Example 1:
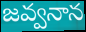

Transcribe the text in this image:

జవ్వనాన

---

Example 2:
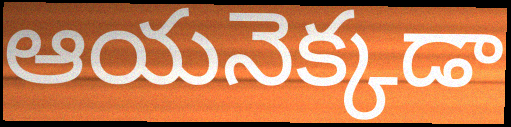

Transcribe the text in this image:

ఆయనెక్కడా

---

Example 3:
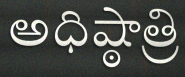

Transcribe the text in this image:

అధిష్ఠాత్రి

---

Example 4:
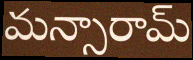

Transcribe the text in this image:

మన్సారామ్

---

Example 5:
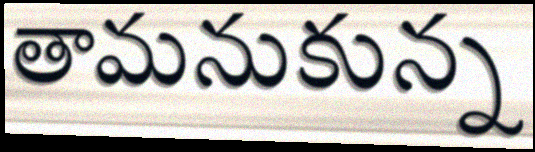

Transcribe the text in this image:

తామనుకున్న